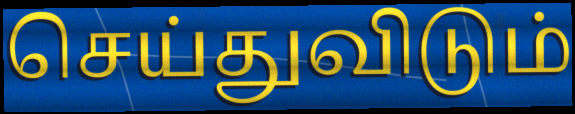
செய்துவிடும்